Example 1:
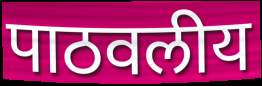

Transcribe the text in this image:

पाठवलीय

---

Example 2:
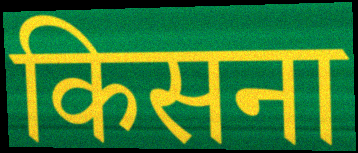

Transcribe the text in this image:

किसना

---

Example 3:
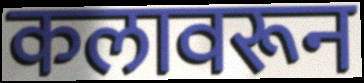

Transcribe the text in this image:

कलावरून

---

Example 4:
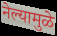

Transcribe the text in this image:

नेल्यामुळे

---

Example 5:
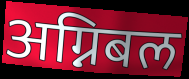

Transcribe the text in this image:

अग्निबल